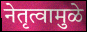
नेतृत्वामुळे